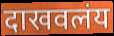
दाखवलंय